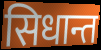
सिधान्त